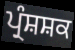
ਪ੍ਰੰਸ਼ਸ਼ਕ